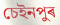
চেইনপুৰ